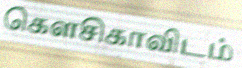
கௌசிகாவிடம்